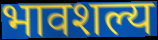
भावशल्य